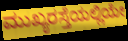
ಮುಖ್ಯರಸ್ತೆಯಲ್ಲಿಯೇ